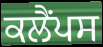
ਕਲੈਂਪਸ